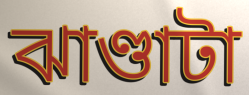
ঝাণ্ডাটা